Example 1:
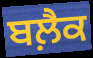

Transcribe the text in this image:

ਬਲ਼ੈਕ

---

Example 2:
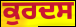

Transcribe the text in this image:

ਕੁਰਦਸ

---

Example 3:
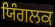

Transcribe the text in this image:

ਯਿੰਗਲਕ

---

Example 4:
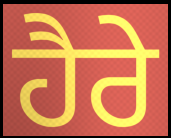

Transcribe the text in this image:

ਹੈਰੇ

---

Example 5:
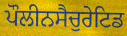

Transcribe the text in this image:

ਪੌਲੀਨਸੈਚੁਰੇਟਿਡ